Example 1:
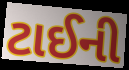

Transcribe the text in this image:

ટાઈની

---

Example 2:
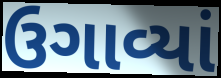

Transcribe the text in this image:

ઉગાવ્યાં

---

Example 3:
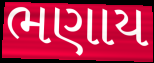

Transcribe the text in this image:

ભણાય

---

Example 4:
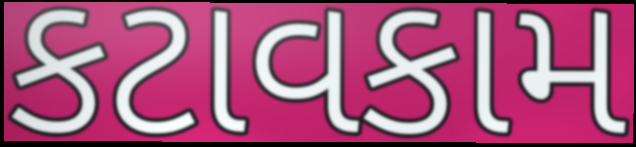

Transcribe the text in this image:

કટાવકામ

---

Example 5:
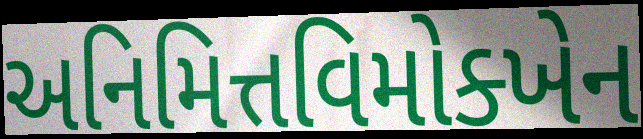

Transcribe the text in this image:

અનિમિત્તવિમોક્ખેન